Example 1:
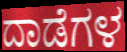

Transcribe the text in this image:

ದಾಡೆಗಳ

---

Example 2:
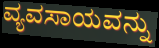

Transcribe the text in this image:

ವ್ಯವಸಾಯವನ್ನು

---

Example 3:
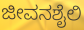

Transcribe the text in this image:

ಜೀವನಶೈಲಿ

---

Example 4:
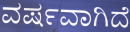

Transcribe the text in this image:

ವರ್ಷವಾಗಿದೆ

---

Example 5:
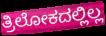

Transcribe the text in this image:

ತ್ರಿಲೋಕದಲ್ಲಿಲ್ಲ